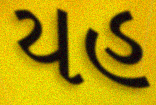
યહ